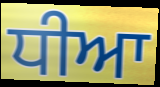
ਧੀਆ